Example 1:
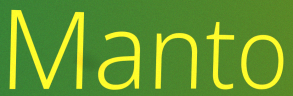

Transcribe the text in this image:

Manto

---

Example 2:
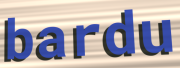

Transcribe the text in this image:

bardu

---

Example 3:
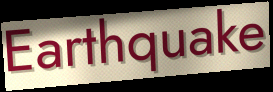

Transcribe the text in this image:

Earthquake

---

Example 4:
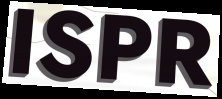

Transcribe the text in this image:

ISPR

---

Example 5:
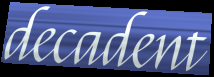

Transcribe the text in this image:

decadent